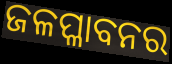
ଜଳପ୍ଳାବନର